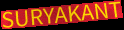
SURYAKANT